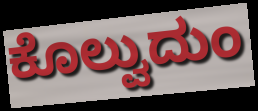
ಕೊಲ್ವುದುಂ